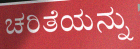
ಚರಿತೆಯನ್ನು